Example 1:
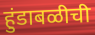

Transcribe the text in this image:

हुंडाबळीची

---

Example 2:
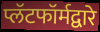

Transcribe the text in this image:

प्लॅटफॉर्मद्वारे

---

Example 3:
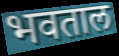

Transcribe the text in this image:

भवताल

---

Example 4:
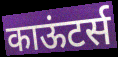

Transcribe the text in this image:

काऊंटर्स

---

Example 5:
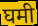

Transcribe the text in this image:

घमी